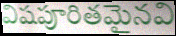
విషపూరితమైనవి